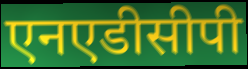
एनएडीसीपी